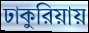
ঢাকুরিয়ায়